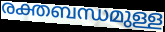
രക്തബന്ധമുള്ള